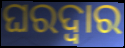
ଘରଦ୍ବାର